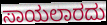
ಸಾಯಲಾರದು